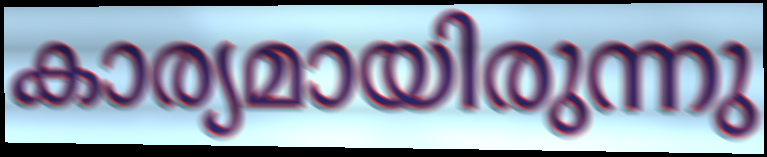
കാര്യമായിരുന്നു